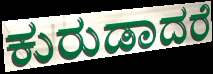
ಕುರುಡಾದರೆ